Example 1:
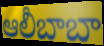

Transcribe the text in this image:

ఆలీబాబా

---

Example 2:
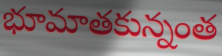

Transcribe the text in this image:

భూమాతకున్నంత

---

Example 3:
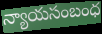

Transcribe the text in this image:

న్యాయసంబంధ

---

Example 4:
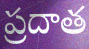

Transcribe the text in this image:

ప్రదాత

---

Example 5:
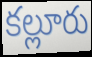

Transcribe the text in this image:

కల్లూరు